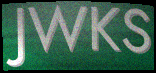
JWKS